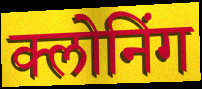
क्लोनिंग